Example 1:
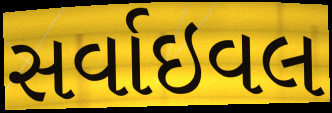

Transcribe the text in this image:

સર્વાઇવલ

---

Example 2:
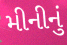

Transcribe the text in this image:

મીનીનું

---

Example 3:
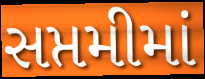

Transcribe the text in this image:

સપ્તમીમાં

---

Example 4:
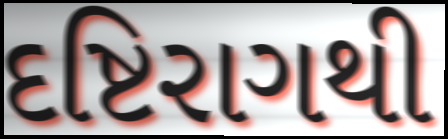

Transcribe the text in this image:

દષ્ટિરાગથી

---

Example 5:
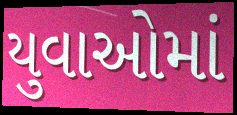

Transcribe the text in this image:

યુવાઓમાં